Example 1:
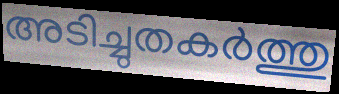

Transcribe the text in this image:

അടിച്ചുതകർത്തു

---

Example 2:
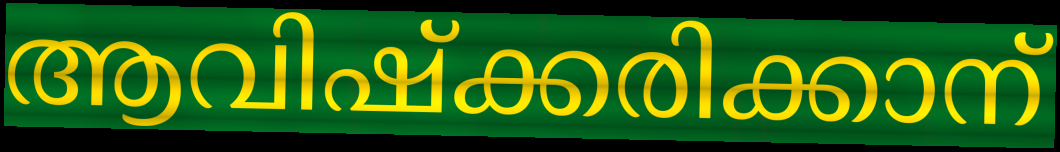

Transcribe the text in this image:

ആവിഷ്ക്കരിക്കാന്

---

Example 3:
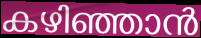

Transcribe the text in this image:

കഴിഞ്ഞാൻ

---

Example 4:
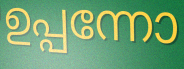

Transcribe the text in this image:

ഉപ്പന്നോ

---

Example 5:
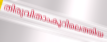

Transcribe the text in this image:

തിരുവിതാംകൂറിലെത്തിയ